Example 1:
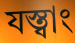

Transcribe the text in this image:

যস্ত্বাং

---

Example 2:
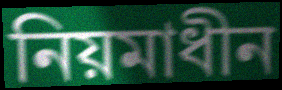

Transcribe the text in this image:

নিয়মাধীন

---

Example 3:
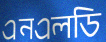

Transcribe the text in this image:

এনএলডি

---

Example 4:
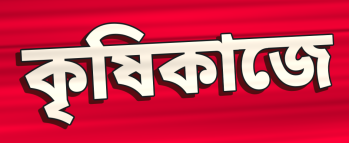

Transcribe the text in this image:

কৃষিকাজে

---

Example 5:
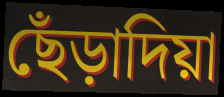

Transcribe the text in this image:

ছেঁড়াদিয়া